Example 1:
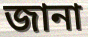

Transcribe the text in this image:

জানা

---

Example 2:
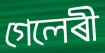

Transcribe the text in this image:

গেলেৰী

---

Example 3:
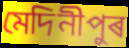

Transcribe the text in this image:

মেদিনীপুৰ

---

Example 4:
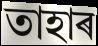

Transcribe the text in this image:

তাহাৰ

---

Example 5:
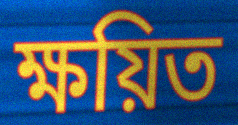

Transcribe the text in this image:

ক্ষয়িত